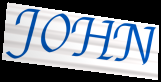
JOHN